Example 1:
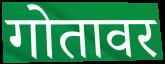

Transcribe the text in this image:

गोतावर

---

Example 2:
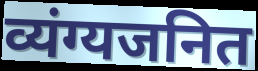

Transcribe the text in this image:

व्यंग्यजनित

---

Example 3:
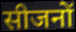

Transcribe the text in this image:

सीजनों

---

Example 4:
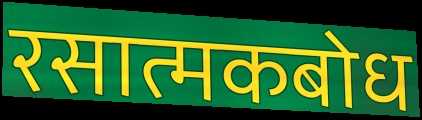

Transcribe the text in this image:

रसात्मकबोध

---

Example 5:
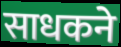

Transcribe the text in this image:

साधकने